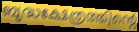
ബുദ്ധക്ഷേത്രത്തിന്റെ